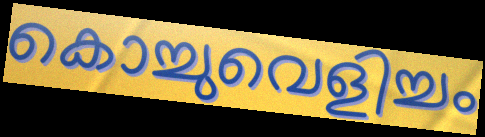
കൊച്ചുവെളിച്ചം